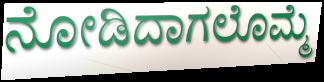
ನೋಡಿದಾಗಲೊಮ್ಮೆ